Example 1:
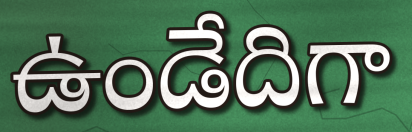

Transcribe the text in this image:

ఉండేదిగా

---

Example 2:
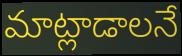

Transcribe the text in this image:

మాట్లాడాలనే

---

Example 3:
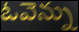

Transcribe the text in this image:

ఓవెన్ను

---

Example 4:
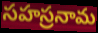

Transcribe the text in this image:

సహస్రనామ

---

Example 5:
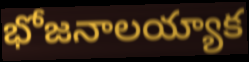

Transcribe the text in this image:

భోజనాలయ్యాక